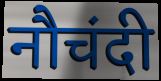
नौचंदी